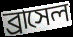
ব্রাসেল